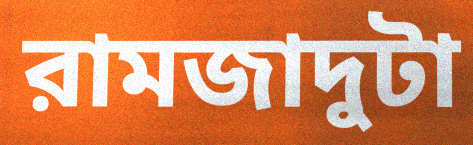
রামজাদুটা